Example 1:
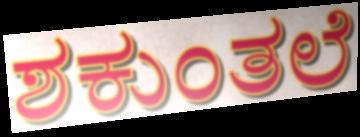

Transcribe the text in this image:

ಶಕುಂತಲೆ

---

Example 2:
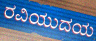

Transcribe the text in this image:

ರವಿಯುದಯ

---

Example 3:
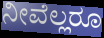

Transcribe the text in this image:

ನೀವೆಲ್ಲರೂ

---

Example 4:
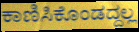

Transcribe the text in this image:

ಕಾಣಿಸಿಕೊಂಡದ್ದಲ್ಲ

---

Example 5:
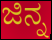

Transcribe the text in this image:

ಜಿನ್ನ